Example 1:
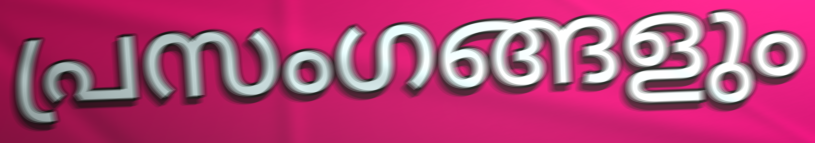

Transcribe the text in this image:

പ്രസംഗങ്ങളും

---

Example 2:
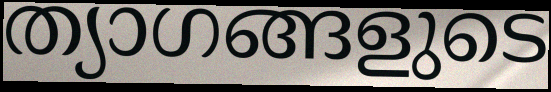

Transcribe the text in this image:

ത്യാഗങ്ങളുടെ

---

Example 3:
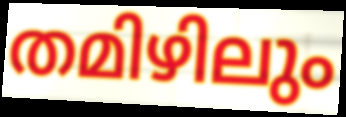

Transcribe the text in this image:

തമിഴിലും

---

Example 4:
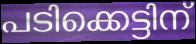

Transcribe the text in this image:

പടിക്കെട്ടിന്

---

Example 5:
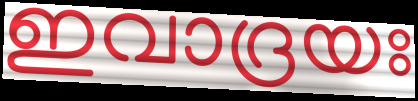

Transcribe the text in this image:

ഇവാദ്രയഃ